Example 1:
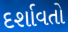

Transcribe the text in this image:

દર્શાવતો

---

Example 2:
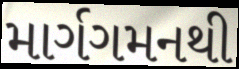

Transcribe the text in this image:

માર્ગગમનથી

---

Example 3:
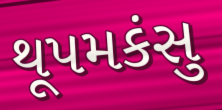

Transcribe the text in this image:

થૂપમકંસુ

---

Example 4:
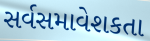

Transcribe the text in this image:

સર્વસમાવેશકતા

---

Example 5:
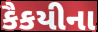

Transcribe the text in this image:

કૈકયીના